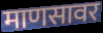
माणसावर